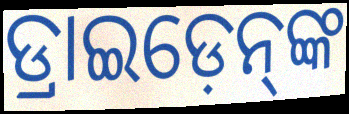
ଡ୍ରାଇଡ଼େନ୍‌ଙ୍କ